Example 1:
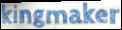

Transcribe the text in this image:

kingmaker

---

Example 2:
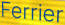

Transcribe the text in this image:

Ferrier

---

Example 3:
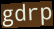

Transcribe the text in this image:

gdrp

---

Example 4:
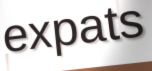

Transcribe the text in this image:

expats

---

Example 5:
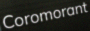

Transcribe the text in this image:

Coromorant